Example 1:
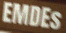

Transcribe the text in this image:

EMDEs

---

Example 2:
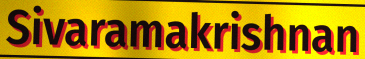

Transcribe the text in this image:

Sivaramakrishnan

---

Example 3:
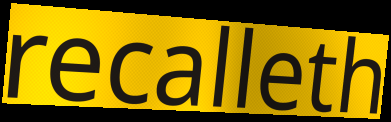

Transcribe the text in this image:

recalleth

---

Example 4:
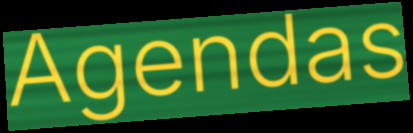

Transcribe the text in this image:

Agendas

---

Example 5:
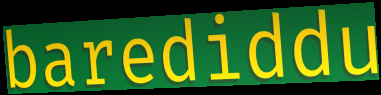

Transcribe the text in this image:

barediddu